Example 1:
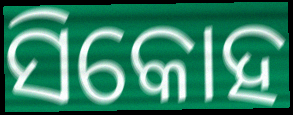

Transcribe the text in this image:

ସିକୋହ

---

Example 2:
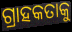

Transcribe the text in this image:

ଗ୍ରାହକତାକୁ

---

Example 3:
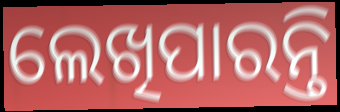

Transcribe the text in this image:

ଲେଖିପାରନ୍ତି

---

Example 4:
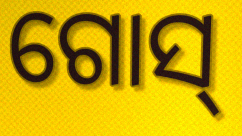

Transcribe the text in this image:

ଗୋସ୍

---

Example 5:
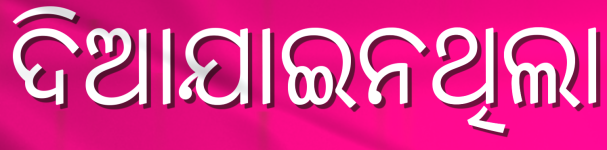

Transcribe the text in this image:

ଦିଆଯାଇନଥିଲା